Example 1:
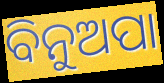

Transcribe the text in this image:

ବିନୁଅପା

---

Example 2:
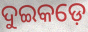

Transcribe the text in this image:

ଦୁଇକଡ଼େ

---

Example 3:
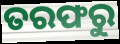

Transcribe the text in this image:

ତରଫରୁ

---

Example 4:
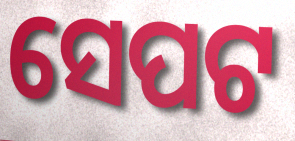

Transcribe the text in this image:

ସେପଟ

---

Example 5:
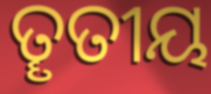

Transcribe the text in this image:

ତୄତୀୟ